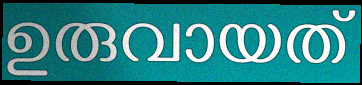
ഉരുവായത്